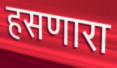
हसणारा